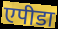
एपीडा